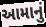
આમાનું